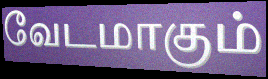
வேடமாகும்